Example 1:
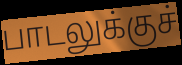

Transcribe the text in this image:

பாடலுக்குச்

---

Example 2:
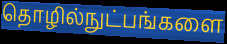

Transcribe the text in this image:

தொழில்நுட்பங்களை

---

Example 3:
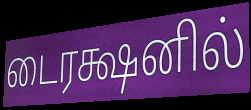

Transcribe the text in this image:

டைரக்ஷனில்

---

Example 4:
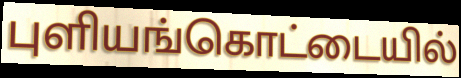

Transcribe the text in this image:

புளியங்கொட்டையில்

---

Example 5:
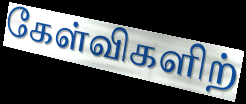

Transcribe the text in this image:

கேள்விகளிற்